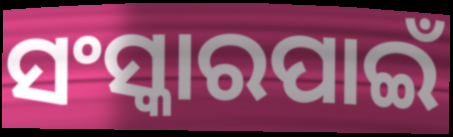
ସଂସ୍କାରପାଇଁ